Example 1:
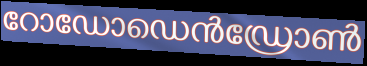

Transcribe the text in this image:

റോഡോഡെൻഡ്രോൺ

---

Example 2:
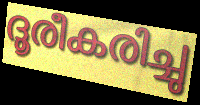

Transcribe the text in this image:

ദൂരീകരിച്ചു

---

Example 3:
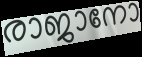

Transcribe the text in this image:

രാജാനോ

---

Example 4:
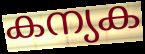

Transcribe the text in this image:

കന്യക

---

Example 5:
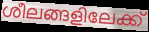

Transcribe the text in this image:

ശീലങ്ങളിലേക്ക്